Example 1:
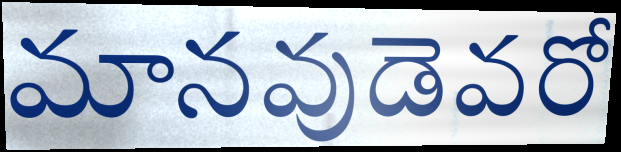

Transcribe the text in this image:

మానవుడెవరో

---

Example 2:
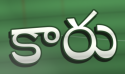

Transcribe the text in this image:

కారు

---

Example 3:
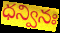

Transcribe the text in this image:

ధన్వినః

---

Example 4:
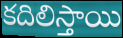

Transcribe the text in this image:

కదిలిస్తాయి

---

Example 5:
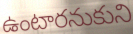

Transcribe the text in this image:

ఉంటారనుకుని